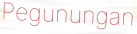
Pegunungan